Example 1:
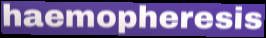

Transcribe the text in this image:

haemopheresis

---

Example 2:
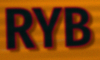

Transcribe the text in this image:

RYB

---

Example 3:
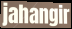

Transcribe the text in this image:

jahangir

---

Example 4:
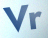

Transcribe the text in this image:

Vr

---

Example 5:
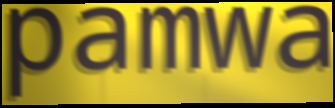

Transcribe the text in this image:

pamwa